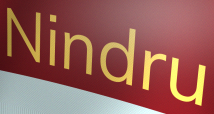
Nindru